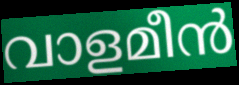
വാളമീൻ